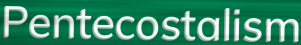
Pentecostalism